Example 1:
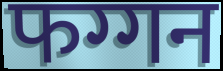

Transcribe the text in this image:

फग्‍गन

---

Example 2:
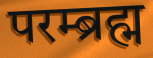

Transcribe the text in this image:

परम्ब्रह्म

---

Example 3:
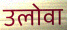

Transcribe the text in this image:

उलोवा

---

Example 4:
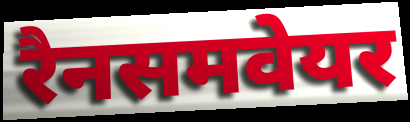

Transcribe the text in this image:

रैनसमवेयर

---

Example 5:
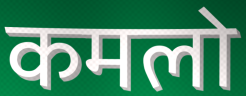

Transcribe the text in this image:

कमलो